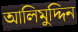
আলিমুদ্দিন